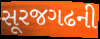
સૂરજગઢની